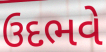
ઉદભવે